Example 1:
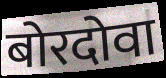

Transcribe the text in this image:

बोरदोवा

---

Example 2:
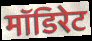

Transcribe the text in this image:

मॉडिरेट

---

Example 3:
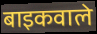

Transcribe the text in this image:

बाइकवाले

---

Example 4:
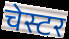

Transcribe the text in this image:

चेस्टर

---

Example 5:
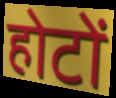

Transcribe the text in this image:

होटों